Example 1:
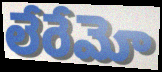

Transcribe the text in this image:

లేరేమో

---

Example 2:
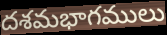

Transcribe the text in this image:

దశమభాగములు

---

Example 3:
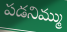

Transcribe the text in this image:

పడనిమ్ము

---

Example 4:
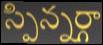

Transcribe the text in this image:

స్పిన్నర్గా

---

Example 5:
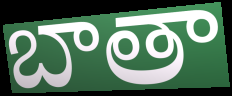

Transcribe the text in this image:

బాతా